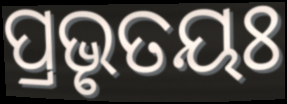
ପ୍ରଭୃତୟଃ